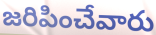
జరిపించేవారు